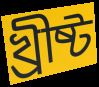
খ্রীষ্ট